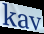
kav